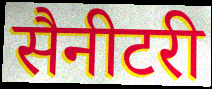
सैनीटरी